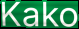
Kako